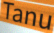
Tanu